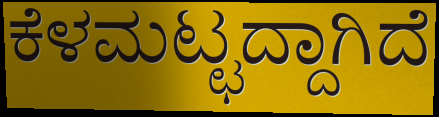
ಕೆಳಮಟ್ಟದ್ದಾಗಿದೆ